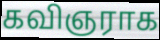
கவிஞராக